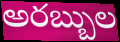
అరబ్బుల